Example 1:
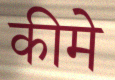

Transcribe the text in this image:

कीमे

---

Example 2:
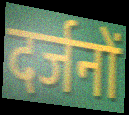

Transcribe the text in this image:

दर्जनों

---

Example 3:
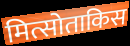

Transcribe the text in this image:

मित्सोताकिस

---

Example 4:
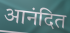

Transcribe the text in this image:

आनंदित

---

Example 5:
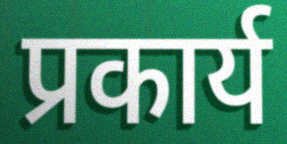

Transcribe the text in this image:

प्रकार्य